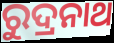
ରୁଦ୍ରନାଥ